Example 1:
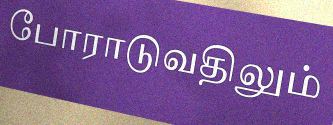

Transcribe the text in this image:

போராடுவதிலும்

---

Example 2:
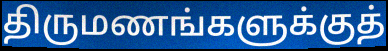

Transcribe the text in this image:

திருமணங்களுக்குத்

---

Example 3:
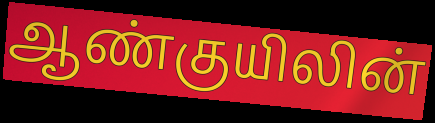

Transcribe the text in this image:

ஆண்குயிலின்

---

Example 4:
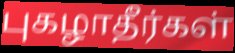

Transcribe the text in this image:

புகழாதீர்கள்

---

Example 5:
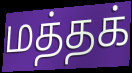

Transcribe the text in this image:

மத்தக்